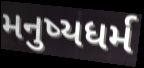
મનુષ્યધર્મ